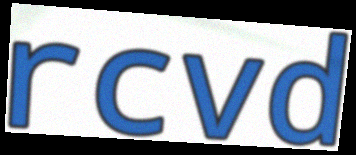
rcvd